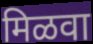
मिळवा